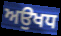
ਅਉਖਧ